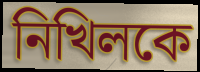
নিখিলকে